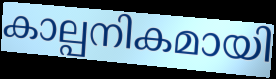
കാല്പനികമായി